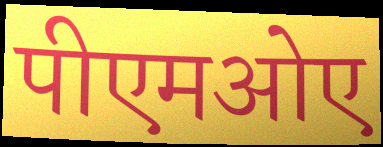
पीएमओए